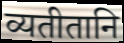
व्यतीतानि